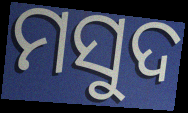
ମସୁଦ